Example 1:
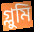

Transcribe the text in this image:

গ্লুমি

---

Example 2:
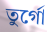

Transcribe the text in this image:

তুর্গো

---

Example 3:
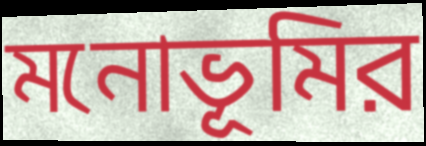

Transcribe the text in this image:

মনোভূমির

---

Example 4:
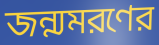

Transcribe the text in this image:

জন্মমরণের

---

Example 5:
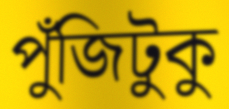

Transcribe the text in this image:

পুঁজিটুকু